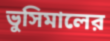
ভুসিমালের